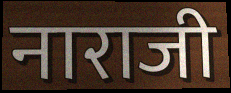
नाराजी